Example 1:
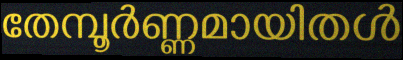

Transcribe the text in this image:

തേമ്പൂർണ്ണമായിതൾ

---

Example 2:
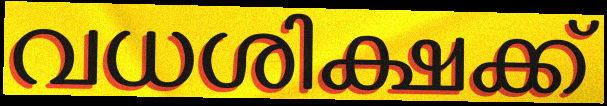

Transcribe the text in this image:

വധശിക്ഷക്ക്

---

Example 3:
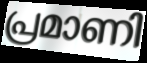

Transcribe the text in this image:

പ്രമാണി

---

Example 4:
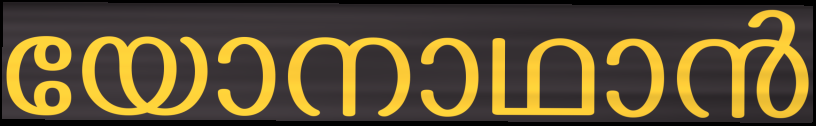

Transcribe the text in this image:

യോനാഥാൻ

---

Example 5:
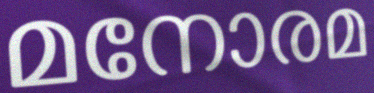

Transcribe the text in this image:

മനോരമ